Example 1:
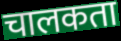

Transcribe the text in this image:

चालकता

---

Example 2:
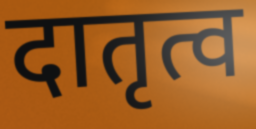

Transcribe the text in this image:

दातृत्व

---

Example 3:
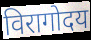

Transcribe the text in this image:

विरागोदय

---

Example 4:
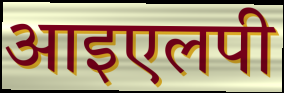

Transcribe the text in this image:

आइएलपी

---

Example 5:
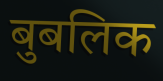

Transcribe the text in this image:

बुबलिक